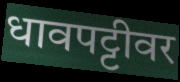
धावपट्टीवर